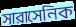
সারাসেনিক